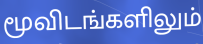
மூவிடங்களிலும்